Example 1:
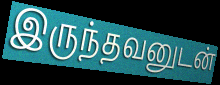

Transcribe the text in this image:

இருந்தவனுடன்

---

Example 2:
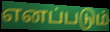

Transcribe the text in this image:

எனப்படும்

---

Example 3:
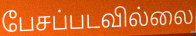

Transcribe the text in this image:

பேசப்படவில்லை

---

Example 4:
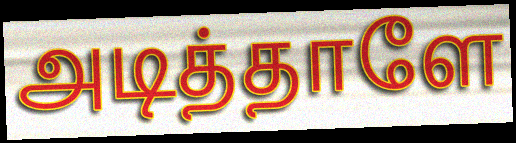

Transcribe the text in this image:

அடித்தாளே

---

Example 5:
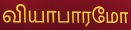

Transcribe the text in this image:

வியாபாரமோ